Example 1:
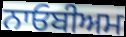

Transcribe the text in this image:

ਨਾਓਬੀਅਮ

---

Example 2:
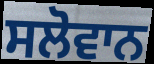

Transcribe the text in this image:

ਸਲੋਵਾਨ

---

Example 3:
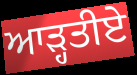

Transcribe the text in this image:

ਆੜ੍ਹਤੀਏ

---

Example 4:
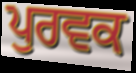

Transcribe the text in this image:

ਪੁਰਵਕ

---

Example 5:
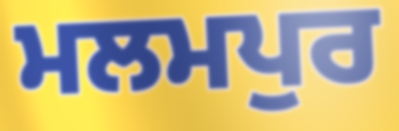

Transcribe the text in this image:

ਮਲਮਪੁਰ